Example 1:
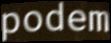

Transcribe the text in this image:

podem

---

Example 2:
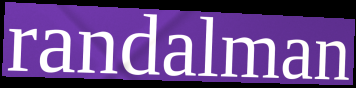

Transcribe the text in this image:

randalman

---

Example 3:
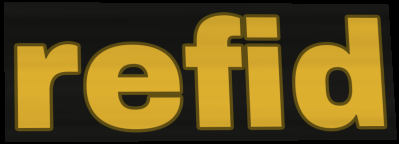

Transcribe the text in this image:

refid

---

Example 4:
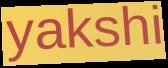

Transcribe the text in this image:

yakshi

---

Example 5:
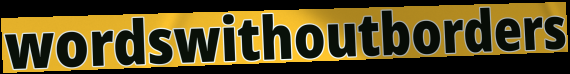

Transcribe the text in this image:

wordswithoutborders